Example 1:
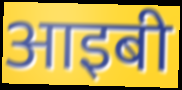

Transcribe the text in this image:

आइबी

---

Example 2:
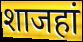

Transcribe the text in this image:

शाजहां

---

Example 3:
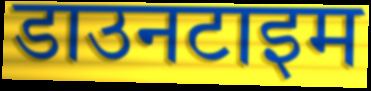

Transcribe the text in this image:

डाउनटाइम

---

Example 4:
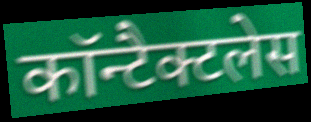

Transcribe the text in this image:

कॉन्टैक्टलेस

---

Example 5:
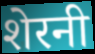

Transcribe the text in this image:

शेरनी